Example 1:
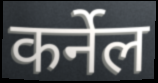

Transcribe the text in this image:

कर्नेल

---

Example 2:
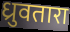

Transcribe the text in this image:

ध्रुवतारा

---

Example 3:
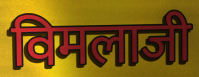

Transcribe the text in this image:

विमलाजी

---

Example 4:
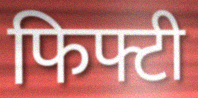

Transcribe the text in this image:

फिफ्टी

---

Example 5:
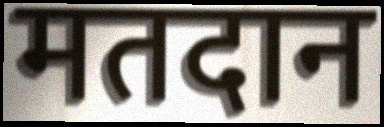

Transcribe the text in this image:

मतदान